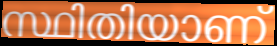
സ്ഥിതിയാണ്